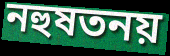
নহুষতনয়